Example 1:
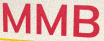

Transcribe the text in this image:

MMB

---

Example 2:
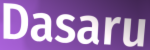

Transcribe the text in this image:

Dasaru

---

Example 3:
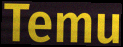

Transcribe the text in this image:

Temu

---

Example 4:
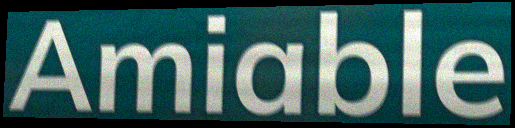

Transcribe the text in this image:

Amiable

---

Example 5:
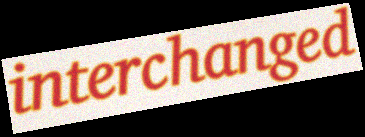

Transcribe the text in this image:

interchanged